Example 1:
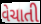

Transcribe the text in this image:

વેચાતી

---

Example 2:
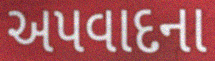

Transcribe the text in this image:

અપવાદના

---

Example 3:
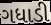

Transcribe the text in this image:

ગધાડી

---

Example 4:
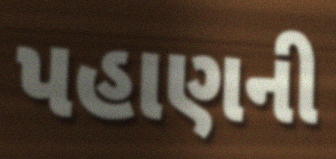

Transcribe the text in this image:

પહાણની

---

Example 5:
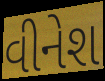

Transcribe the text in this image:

વીનેશ